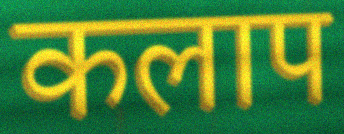
कलाप